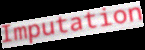
Imputation